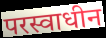
परस्वाधीन